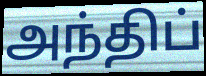
அந்திப்